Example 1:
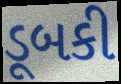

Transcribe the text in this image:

ડૂબકી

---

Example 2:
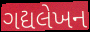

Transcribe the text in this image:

ગદ્યલેખન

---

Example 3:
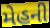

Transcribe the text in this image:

મેહની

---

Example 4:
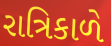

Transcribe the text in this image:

રાત્રિકાળે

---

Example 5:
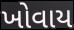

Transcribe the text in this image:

ખોવાય